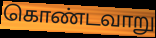
கொண்டவாறு